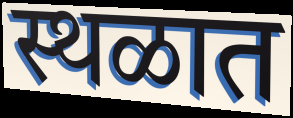
स्थळात